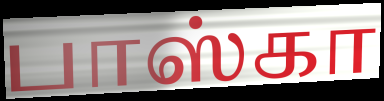
பாஸ்கா